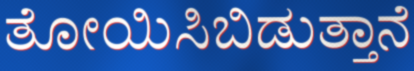
ತೋಯಿಸಿಬಿಡುತ್ತಾನೆ